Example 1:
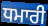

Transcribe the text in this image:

ਧਮਾਰੀ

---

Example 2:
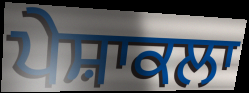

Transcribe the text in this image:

ਪੇਸ਼ਾਕਲਾ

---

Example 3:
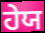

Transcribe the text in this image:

ਹੇਯ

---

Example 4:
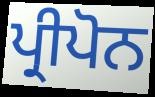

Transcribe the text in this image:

ਪ੍ਰੀਪੋਨ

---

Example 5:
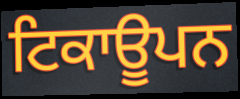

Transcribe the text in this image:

ਟਿਕਾਊਪਨ